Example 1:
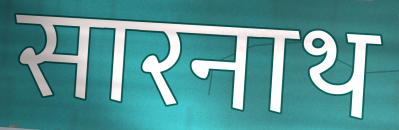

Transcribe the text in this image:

सारनाथ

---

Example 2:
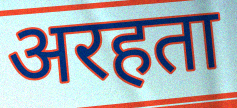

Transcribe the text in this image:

अरहता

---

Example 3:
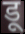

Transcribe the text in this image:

डू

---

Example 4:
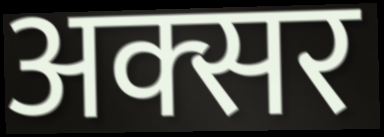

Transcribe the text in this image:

अक्‍सर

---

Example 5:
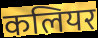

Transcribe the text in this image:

कलियर